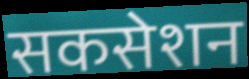
सकसेशन